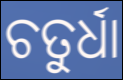
ଚତୁର୍ଧା